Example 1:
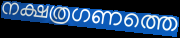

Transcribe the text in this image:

നക്ഷത്രഗണത്തെ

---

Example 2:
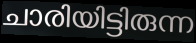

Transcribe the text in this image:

ചാരിയിട്ടിരുന്ന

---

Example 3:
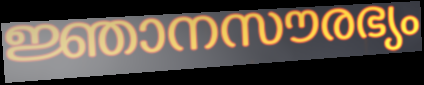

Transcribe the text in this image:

ജ്ഞാനസൗരഭ്യം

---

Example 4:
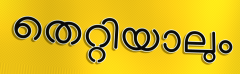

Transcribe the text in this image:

തെറ്റിയാലും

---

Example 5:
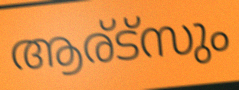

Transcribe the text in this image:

ആര്ട്സും